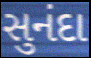
સુનંદા